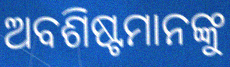
ଅବଶିଷ୍ଟମାନଙ୍କୁ